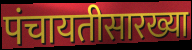
पंचायतीसारख्या